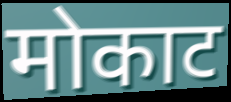
मोकाट